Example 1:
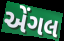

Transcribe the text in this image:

એંગલ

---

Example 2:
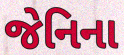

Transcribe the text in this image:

જેનિના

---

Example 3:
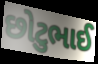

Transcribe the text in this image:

છોટુભાઈ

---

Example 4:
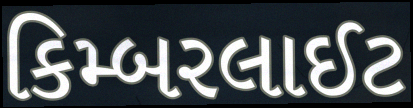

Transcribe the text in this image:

કિમ્બરલાઈટ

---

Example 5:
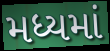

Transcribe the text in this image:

મધ્યમાં